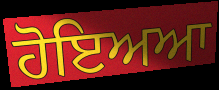
ਹੋਇਅਆ